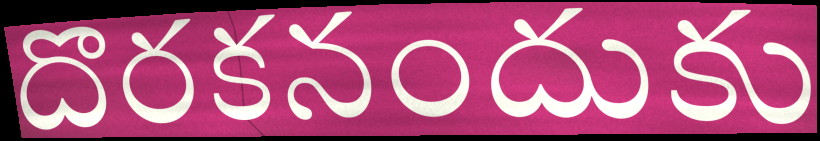
దొరకనందుకు